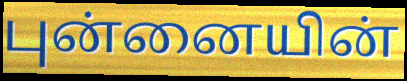
புன்னையின்